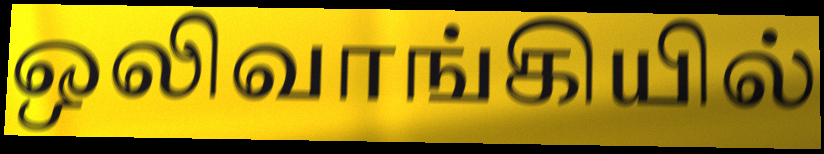
ஒலிவாங்கியில்